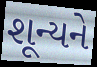
શૂન્યને